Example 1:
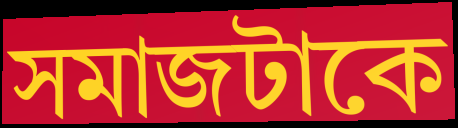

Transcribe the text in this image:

সমাজটাকে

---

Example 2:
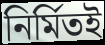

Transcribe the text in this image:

নির্মিতই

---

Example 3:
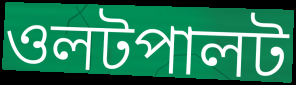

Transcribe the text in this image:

ওলটপালট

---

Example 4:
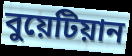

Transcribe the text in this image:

বুয়েটিয়ান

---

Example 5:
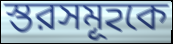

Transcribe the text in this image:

স্তরসমূহকে